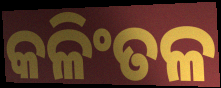
କଳିଂତଳ